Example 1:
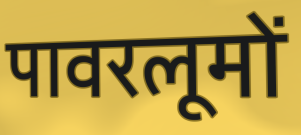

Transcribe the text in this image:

पावरलूमों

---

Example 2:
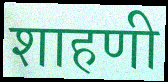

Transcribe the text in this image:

शाहणी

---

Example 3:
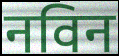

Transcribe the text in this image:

नविन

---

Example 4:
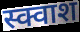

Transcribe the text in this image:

स्क्वाश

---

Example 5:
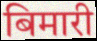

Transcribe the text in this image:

बिमारी